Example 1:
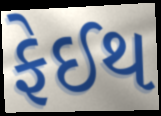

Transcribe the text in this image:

ફેઈથ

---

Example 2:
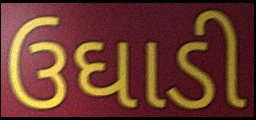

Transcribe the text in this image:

ઉઘાડી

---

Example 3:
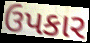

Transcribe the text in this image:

ઉપકાર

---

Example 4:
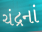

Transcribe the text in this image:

ચંદ્રનાં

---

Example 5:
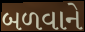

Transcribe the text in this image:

બળવાને